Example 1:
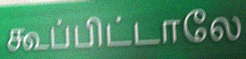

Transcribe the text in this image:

கூப்பிட்டாலே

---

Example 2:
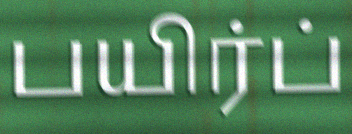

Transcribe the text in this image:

பயிர்ப்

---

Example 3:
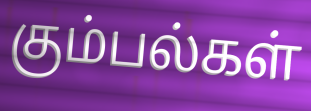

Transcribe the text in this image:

கும்பல்கள்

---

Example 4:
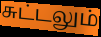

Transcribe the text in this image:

சுட்டலும்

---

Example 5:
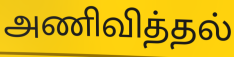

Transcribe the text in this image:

அணிவித்தல்